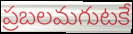
ప్రబలమగుటకే